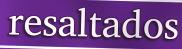
resaltados